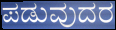
ಪಡುವುದರ